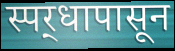
स्पर्धापासून